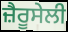
ਜ਼ੈਰੂਸੇਲੀ